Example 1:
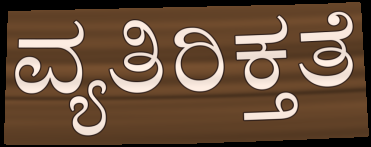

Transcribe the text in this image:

ವ್ಯತಿರಿಕ್ತತೆ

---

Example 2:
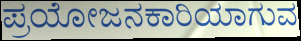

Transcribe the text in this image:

ಪ್ರಯೋಜನಕಾರಿಯಾಗುವ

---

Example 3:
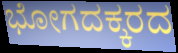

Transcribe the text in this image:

ಭೋಗದಕ್ಕರದ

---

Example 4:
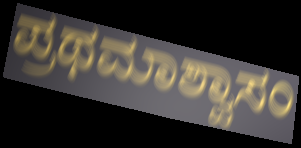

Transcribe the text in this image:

ಪ್ರಥಮಾಶ್ವಾಸಂ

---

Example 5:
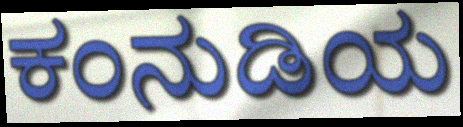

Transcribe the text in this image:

ಕಂನುಡಿಯ